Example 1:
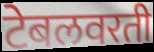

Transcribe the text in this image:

टेबलवरती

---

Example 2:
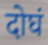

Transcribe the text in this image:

दोघं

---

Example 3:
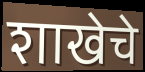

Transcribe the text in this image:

शाखेचे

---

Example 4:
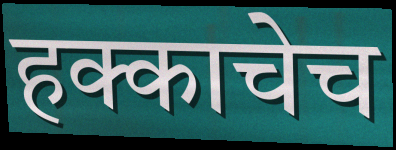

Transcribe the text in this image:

हक्काचेच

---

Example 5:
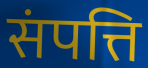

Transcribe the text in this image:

संपत्ति